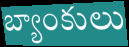
బ్యాంకులు